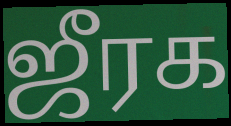
ஜீரக